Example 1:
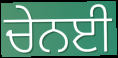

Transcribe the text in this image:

ਚੇਨਈ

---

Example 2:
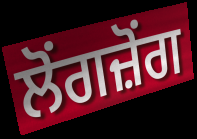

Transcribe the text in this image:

ਲੋਂਗਜ਼ੋਂਗ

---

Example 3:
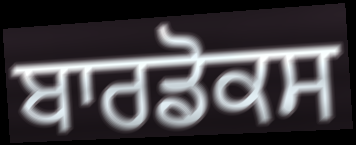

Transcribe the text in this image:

ਬਾਰਡੋਕਸ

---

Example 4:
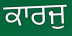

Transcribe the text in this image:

ਕਾਰਜੁ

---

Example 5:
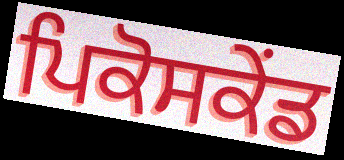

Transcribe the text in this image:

ਪਿਕੋਸਕੇਂਡ